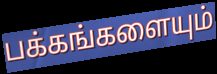
பக்கங்களையும்